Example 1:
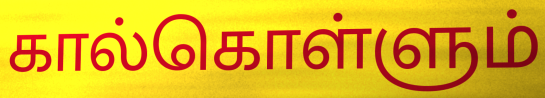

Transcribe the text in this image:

கால்கொள்ளும்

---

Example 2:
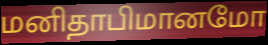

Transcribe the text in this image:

மனிதாபிமானமோ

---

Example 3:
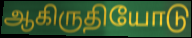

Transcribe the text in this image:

ஆகிருதியோடு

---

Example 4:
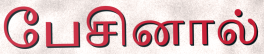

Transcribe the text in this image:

பேசினால்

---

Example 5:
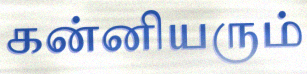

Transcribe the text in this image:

கன்னியரும்